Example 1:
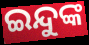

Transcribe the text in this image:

ଇନ୍ଦୁଙ୍କ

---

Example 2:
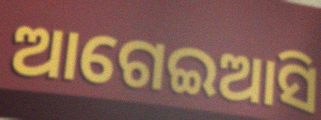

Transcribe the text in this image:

ଆଗେଇଆସି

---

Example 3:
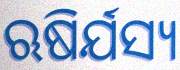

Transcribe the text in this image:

ଋଷିର୍ଯସ୍ୟ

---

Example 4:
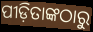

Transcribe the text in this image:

ପୀଡ଼ିତାଙ୍କଠାରୁ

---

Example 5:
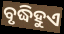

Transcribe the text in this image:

ବୃଦ୍ଧିହୁଏ